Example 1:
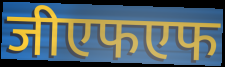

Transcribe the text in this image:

जीएफएफ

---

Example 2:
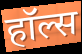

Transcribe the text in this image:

हॉल्स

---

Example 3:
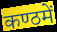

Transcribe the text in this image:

कण्ठमें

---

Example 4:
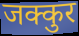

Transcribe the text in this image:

जक्कुर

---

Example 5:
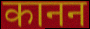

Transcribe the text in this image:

कानन